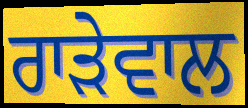
ਰਾੜੇਵਾਲ